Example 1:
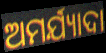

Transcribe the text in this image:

ଅମର୍ଯ୍ୟାଦା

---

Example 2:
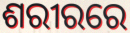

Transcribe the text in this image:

ଶରୀରରେ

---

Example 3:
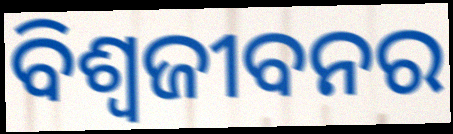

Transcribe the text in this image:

ବିଶ୍ଵଜୀବନର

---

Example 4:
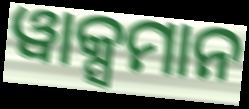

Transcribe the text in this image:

ୱାକ୍ସମାନ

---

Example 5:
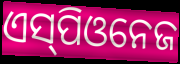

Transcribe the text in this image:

ଏସ୍‌ପିଓନେଜ